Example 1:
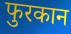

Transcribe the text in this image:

फुरकान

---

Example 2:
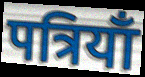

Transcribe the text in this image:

पत्रियाँ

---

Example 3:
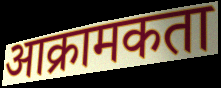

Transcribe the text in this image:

आक्रामकता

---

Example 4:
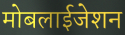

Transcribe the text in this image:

मोबलाईजेशन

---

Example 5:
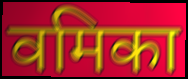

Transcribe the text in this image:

वमिका